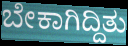
ಬೇಕಾಗಿದ್ದಿತು